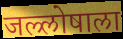
जल्लोषाला